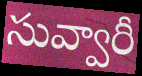
సువ్వారీ